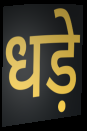
धड़े